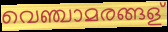
വെഞ്ചാമരങ്ങള്